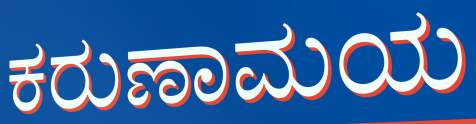
ಕರುಣಾಮಯ